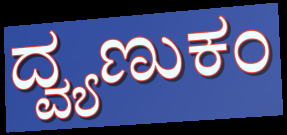
ದ್ವ್ಯಣುಕಂ